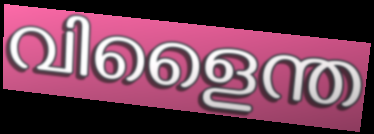
വിളൈന്ത